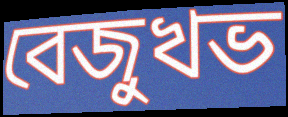
বেজুখভ